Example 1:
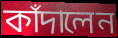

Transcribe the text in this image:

কাঁদালেন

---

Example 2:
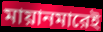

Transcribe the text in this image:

মায়ানমারেই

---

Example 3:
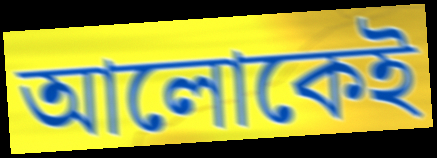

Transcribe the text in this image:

আলোকেই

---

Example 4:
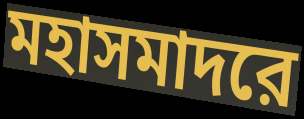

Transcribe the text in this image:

মহাসমাদরে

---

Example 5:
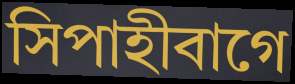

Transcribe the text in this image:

সিপাহীবাগে